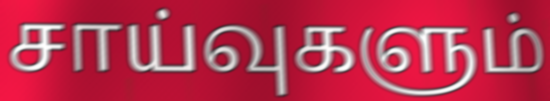
சாய்வுகளும்